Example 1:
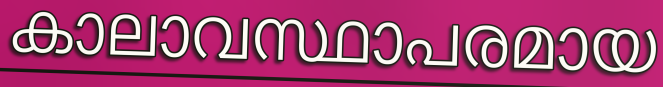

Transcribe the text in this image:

കാലാവസ്ഥാപരമായ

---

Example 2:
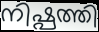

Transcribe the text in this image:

നിഷ്പത്തി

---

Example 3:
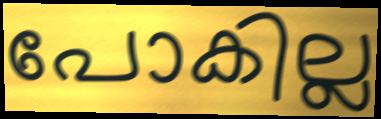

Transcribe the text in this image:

പോകില്ല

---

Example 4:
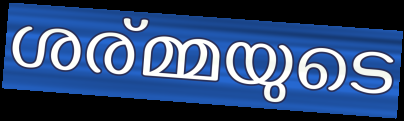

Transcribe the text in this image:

ശര്മ്മയുടെ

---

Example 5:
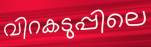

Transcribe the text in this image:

വിറകടുപ്പിലെ